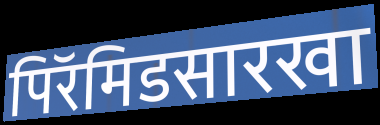
पिरॅमिडसारखा